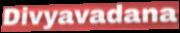
Divyavadana